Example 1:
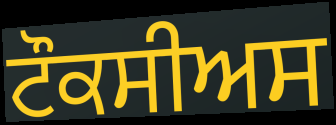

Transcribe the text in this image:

ਟੌਕਸੀਅਸ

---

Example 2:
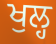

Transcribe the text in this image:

ਖੁਲ੍ਹ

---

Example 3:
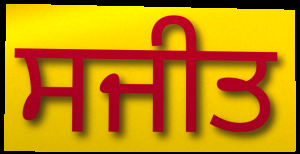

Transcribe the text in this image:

ਸਜੀਤ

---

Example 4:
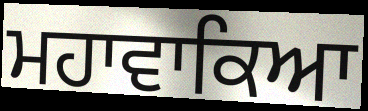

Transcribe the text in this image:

ਮਹਾਵਾਕਿਆ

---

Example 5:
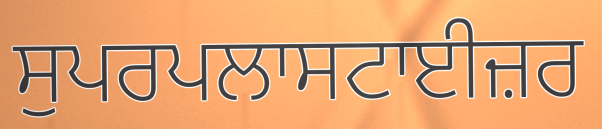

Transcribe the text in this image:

ਸੁਪਰਪਲਾਸਟਾਈਜ਼ਰ